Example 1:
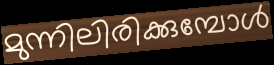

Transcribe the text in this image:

മുന്നിലിരിക്കുമ്പോൾ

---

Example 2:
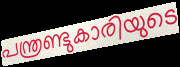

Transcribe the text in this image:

പന്ത്രണ്ടുകാരിയുടെ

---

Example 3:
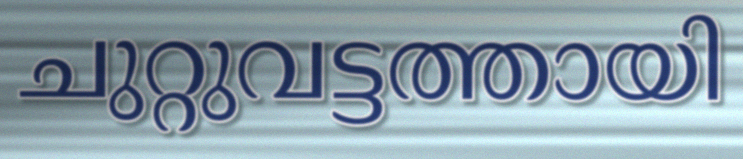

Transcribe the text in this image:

ചുറ്റുവട്ടത്തായി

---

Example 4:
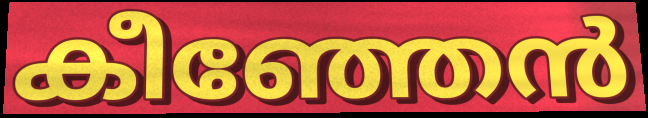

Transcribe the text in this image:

കീഞ്ഞേൻ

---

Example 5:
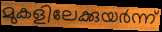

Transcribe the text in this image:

മുകളിലേക്കുയർന്ന്